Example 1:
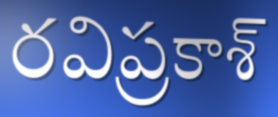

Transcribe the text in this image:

రవిప్రకాశ్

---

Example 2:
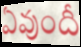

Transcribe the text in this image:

ఏవుందీ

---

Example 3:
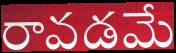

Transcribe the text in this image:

రావడమే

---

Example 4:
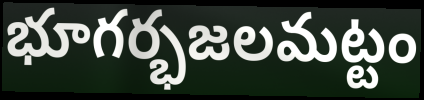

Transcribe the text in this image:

భూగర్భజలమట్టం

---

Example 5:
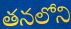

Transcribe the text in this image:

తనలోని